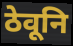
ठेवूनि